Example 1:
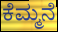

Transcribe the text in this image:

ಕೆಮ್ಮನೆ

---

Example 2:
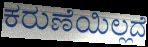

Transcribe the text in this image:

ಕರುಣೆಯಿಲ್ಲದೆ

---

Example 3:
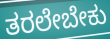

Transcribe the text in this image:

ತರಲೇಬೇಕು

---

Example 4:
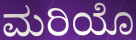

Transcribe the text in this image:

ಮರಿಯೊ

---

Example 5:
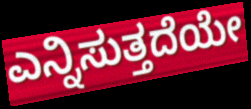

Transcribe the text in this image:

ಎನ್ನಿಸುತ್ತದೆಯೇ